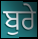
ਬੁਰੇ